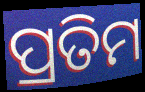
ପ୍ରତିମ